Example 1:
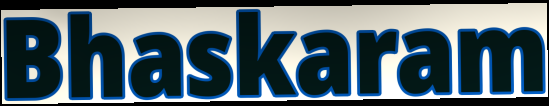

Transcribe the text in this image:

Bhaskaram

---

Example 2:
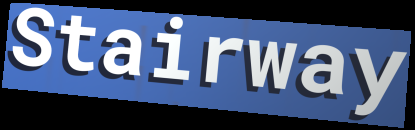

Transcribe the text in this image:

Stairway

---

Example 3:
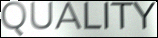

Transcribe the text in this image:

QUALITY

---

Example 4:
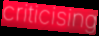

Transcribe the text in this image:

criticising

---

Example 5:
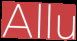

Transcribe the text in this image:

Allu